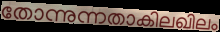
തോന്നുന്നതാകിലഖിലം